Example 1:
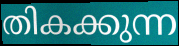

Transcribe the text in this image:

തികക്കുന്ന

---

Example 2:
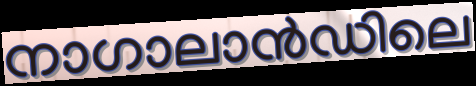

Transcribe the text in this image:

നാഗാലാൻഡിലെ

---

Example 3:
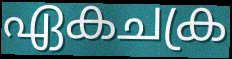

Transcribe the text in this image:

ഏകചക്ര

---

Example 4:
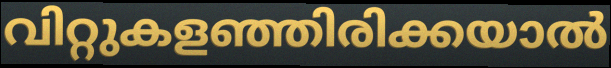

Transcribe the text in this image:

വിറ്റുകളഞ്ഞിരിക്കയാൽ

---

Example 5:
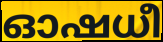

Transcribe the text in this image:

ഓഷധീ